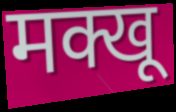
मक्खू